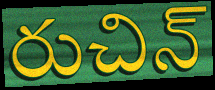
రుచిన్